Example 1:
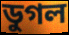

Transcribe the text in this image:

ডুগল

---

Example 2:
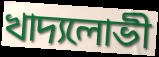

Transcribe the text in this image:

খাদ্যলোভী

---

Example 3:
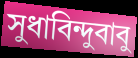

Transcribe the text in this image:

সুধাবিন্দুবাবু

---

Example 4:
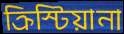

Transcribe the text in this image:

ক্রিস্টিয়ানা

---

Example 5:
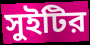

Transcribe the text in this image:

সুইটির